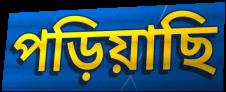
পড়িয়াছি